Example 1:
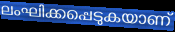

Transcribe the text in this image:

ലംഘിക്കപ്പെടുകയാണ്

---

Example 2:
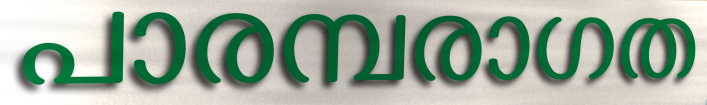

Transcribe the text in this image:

പാരമ്പരാഗത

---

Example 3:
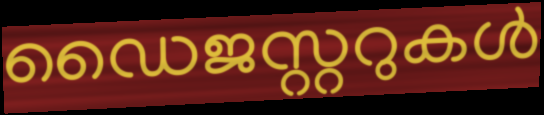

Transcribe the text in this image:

ഡൈജസ്റ്ററുകൾ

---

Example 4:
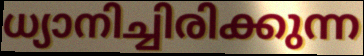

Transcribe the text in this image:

ധ്യാനിച്ചിരിക്കുന്ന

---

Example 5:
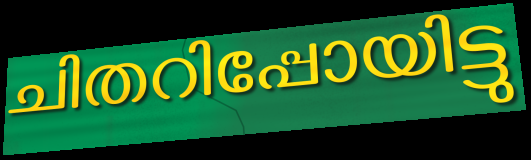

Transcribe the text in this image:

ചിതറിപ്പോയിട്ടു